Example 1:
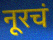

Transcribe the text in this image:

नूरचं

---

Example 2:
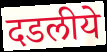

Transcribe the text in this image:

दडलीये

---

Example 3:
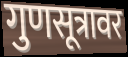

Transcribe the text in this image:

गुणसूत्रावर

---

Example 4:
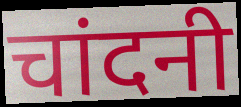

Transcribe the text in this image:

चांदनी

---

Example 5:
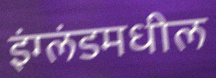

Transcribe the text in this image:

इंग्लंडमधील